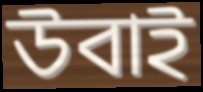
উবাই